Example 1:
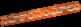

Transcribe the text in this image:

సహకారసంఘాలు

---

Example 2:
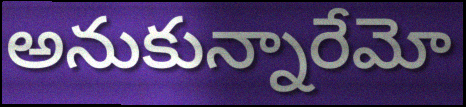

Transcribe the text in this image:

అనుకున్నారేమో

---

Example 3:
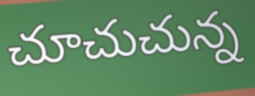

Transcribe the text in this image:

చూచుచున్న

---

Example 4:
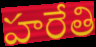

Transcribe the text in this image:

హరేతి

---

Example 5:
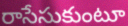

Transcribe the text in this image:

రాసేసుకుంటూ